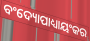
ବଂଦ୍ୟୋପାଧ୍ୟାୟଂକର